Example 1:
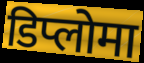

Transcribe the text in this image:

डिप्‍लोमा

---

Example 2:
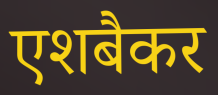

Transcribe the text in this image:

एशबैकर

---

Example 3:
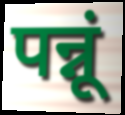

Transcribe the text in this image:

पन्नूं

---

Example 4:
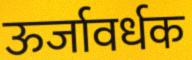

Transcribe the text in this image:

ऊर्जावर्धक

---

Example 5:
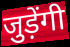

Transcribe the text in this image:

जुड़ेंगी